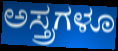
ಅಸ್ತ್ರಗಳೂ